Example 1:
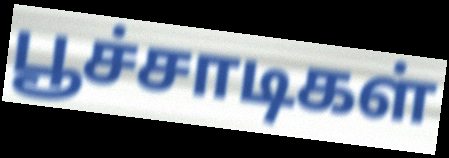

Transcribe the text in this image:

பூச்சாடிகள்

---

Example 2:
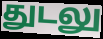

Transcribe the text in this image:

துடலு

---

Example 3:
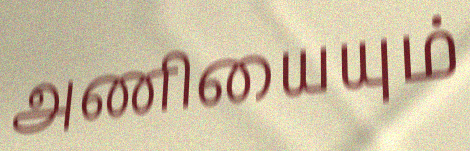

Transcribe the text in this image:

அணியையும்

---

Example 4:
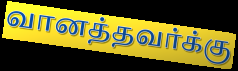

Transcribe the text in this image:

வானத்தவர்க்கு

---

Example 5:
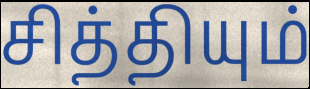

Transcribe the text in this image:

சித்தியும்